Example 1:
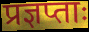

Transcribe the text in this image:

प्रज्ञप्ताः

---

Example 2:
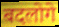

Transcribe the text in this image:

बदलोगे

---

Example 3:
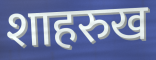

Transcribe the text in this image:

शाहरुख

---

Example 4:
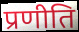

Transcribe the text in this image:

प्रणीति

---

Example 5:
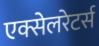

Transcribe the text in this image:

एक्सेलरेटर्स